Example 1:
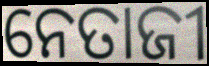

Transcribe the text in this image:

ନେତାଜୀ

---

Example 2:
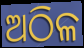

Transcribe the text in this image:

ଅଠିଳ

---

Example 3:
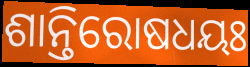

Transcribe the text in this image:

ଶାନ୍ତିରୋଷଧୟଃ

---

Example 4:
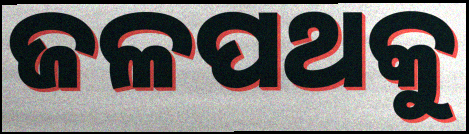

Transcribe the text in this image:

ଜଳପଥକୁ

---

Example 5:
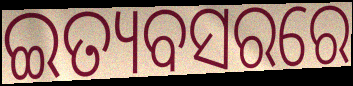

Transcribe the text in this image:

ଇତ୍ୟବସରରେ